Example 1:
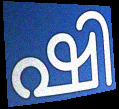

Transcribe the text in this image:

ഷി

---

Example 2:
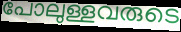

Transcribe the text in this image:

പോലുള്ളവരുടെ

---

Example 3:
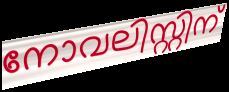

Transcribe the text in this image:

നോവലിസ്റ്റിന്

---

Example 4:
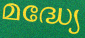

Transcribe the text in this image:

മദ്ധ്യേ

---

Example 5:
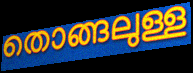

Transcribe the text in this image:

തൊങ്ങലുള്ള